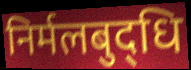
निर्मलबुद्धि